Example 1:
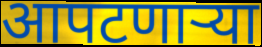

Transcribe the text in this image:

आपटणाऱ्या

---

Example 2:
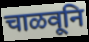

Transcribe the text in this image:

चाळवूनि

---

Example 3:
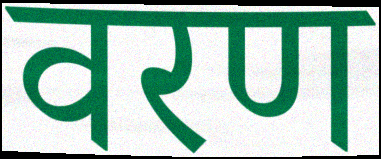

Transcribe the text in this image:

वरण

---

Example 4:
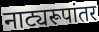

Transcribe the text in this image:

नाट्यरूपांतर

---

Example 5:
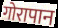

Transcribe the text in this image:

गोरापान